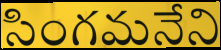
సింగమనేని